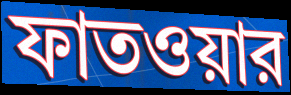
ফাতওয়ার